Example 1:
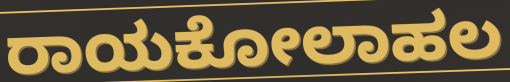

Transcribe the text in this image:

ರಾಯಕೋಲಾಹಲ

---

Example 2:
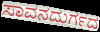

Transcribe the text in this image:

ಸಾವನದುರ್ಗದ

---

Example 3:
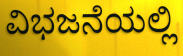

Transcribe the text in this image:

ವಿಭಜನೆಯಲ್ಲಿ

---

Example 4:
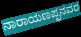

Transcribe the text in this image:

ನಾರಾಯಣಪ್ಪನವರ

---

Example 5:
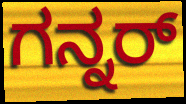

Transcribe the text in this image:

ಗನ್ನರ್